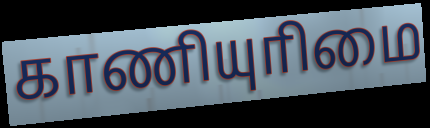
காணியுரிமை